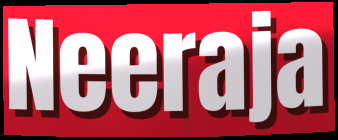
Neeraja